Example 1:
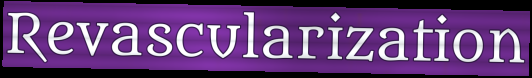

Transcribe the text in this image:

Revascularization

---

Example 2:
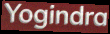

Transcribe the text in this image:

Yogindra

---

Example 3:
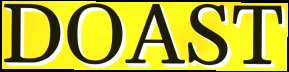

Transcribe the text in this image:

DOAST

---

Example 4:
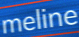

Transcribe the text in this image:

meline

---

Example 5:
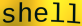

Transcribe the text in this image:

shell